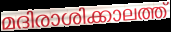
മദിരാശിക്കാലത്ത്